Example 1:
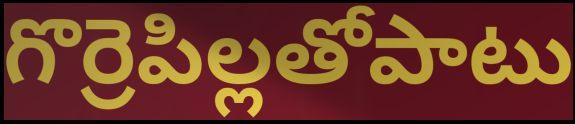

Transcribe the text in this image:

గొర్రెపిల్లతోపాటు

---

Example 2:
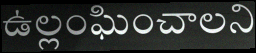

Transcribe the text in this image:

ఉల్లంఘించాలని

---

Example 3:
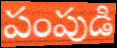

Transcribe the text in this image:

పంపుడి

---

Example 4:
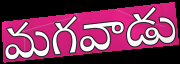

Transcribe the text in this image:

మగవాడు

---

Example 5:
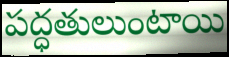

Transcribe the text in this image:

పద్ధతులుంటాయి